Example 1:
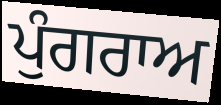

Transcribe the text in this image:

ਪੁੰਗਰਾਅ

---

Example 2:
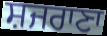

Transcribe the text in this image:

ਸ਼ਜਰਾਣਾ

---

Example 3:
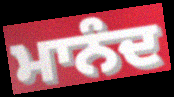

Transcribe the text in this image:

ਮਾਨੰਦ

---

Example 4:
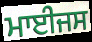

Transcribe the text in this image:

ਮਾਈਜਸ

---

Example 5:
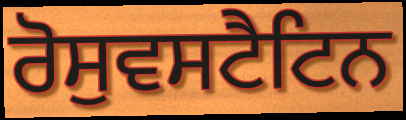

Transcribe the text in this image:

ਰੋਸੁਵਸਟੈਟਿਨ